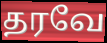
தரவே